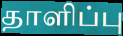
தாளிப்பு